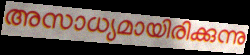
അസാധ്യമായിരിക്കുന്നു